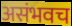
असंभवच